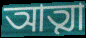
আত্মা